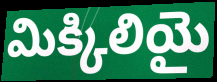
మిక్కిలియై